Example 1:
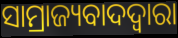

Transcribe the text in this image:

ସାମ୍ରାଜ୍ୟବାଦଦ୍ୱାରା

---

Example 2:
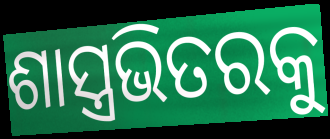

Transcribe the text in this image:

ଶାସ୍ତ୍ରଭିତରକୁ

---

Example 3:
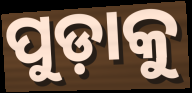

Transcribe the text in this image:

ପୁଡ଼ାକୁ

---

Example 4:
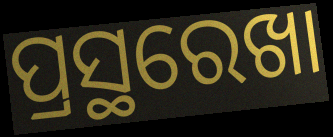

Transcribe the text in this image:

ପ୍ରସ୍ଥରେଖା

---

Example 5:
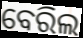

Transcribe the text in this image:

ବେରିଲ